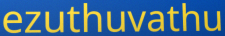
ezuthuvathu